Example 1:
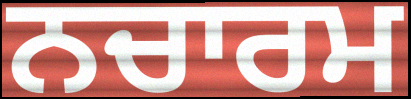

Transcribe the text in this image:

ਨਚਾਰਮ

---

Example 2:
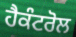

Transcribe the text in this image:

ਹੈਕੰਟਰੋਲ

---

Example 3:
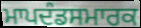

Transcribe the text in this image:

ਮਾਪਦੰਡਸਮਾਰਕ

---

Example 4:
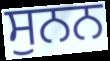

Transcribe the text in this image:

ਸੁਨਨ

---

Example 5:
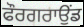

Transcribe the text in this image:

ਫੌਰਗਰਾਉਂਡ